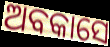
ଅବକାସେ